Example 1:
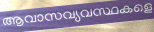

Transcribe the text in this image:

ആവാസവ്യവസ്ഥകളെ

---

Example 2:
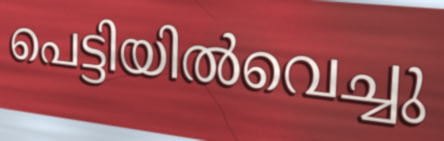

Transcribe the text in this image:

പെട്ടിയിൽവെച്ചു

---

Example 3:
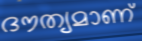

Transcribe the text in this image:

ദൗത്യമാണ്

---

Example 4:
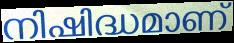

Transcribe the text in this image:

നിഷിദ്ധമാണ്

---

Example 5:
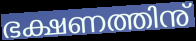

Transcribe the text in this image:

ഭക്ഷണത്തിനു്